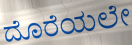
ದೊರೆಯಲೇ